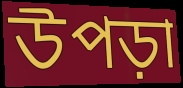
উপড়া